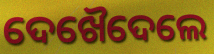
ଦେଖୈଦେଲେ